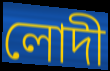
লোদী